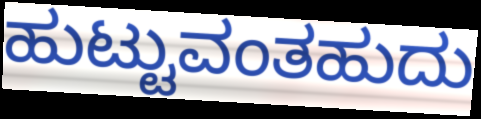
ಹುಟ್ಟುವಂತಹುದು